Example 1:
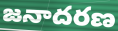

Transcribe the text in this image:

జనాదరణ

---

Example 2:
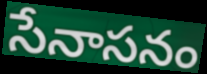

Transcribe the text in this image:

సేనాసనం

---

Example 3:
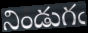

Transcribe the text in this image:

నిండుగఁ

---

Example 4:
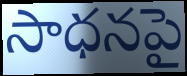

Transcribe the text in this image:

సాధనపై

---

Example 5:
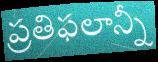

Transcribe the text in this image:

ప్రతిఫలాన్నీ